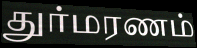
துர்மரணம்